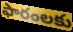
ఫారంలకు